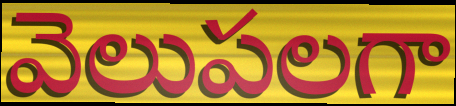
వెలుపలగా